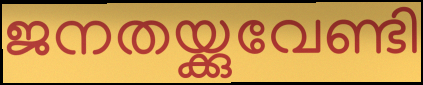
ജനതയ്ക്കുവേണ്ടി